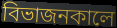
বিভাজনকালে